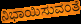
ನಿಭಾಯಿಸುವಂತೆ